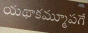
యథాకమ్మూపగే